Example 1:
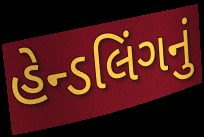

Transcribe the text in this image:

હેન્ડલિંગનું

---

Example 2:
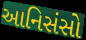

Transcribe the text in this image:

આનિસંસો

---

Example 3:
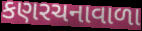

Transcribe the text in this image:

કણરચનાવાળા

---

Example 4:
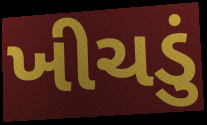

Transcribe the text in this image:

ખીચડું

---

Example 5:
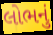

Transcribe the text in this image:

લોભનું